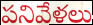
పనివేళలు